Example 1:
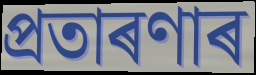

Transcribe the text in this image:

প্ৰতাৰণাৰ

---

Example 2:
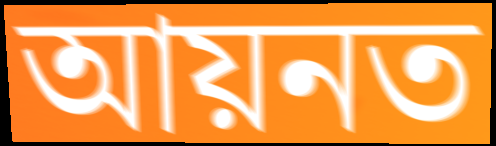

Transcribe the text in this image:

আয়নত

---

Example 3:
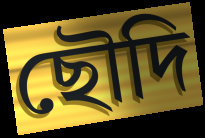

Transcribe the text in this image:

ছৌদি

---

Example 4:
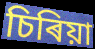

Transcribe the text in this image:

চিৰিয়া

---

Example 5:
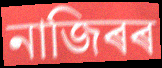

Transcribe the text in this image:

নাজিৰৰ